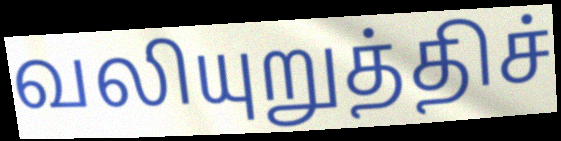
வலியுறுத்திச்